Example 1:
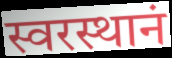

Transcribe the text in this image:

स्वरस्थानं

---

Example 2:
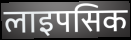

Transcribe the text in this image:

लाइपसिक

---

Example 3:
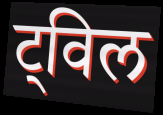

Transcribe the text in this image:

ट्विल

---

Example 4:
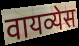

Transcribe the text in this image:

वायव्येस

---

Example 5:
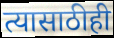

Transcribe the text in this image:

त्यासाठीही